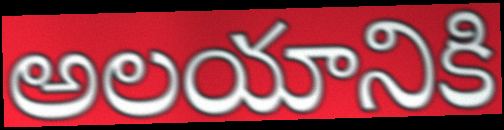
అలయానికి